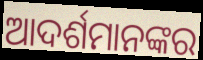
ଆଦର୍ଶମାନଙ୍କର